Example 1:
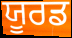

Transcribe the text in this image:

ਯੂਰਡ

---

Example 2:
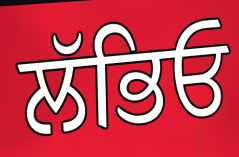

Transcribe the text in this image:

ਲੱਭਿਓ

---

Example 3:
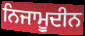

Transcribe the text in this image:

ਨਿਜਾਮੂਦੀਨ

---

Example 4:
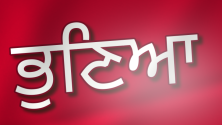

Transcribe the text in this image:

ਭੁਣਿਆ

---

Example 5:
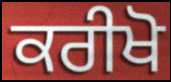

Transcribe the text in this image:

ਕਰੀਖੋ